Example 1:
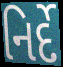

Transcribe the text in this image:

નિર્દે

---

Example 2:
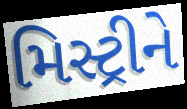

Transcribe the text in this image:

મિસ્ટ્રીને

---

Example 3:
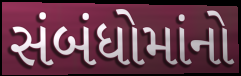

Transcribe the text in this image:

સંબંધોમાંનો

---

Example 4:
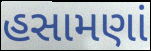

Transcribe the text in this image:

હસામણાં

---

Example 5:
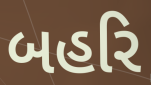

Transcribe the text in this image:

બહરિ